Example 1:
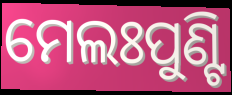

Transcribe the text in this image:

ମେଲଃପୁଣ୍ଟି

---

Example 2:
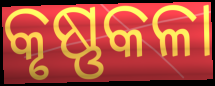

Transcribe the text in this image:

କୃଷ୍ଣକଳା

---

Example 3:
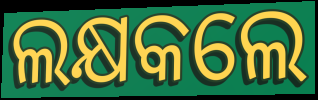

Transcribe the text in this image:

ଲକ୍ଷକଲେ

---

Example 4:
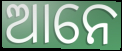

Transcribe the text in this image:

ଆନେ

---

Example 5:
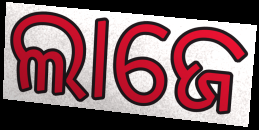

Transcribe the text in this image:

ଲାଜେ